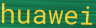
huawei